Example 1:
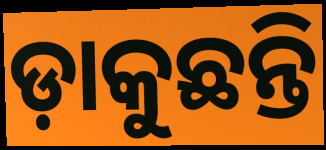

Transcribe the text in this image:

ଡ଼ାକୁଛନ୍ତି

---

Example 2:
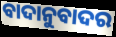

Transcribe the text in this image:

ବାଦାନୁବାଦର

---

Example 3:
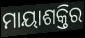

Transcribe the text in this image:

ମାୟାଶକ୍ତିର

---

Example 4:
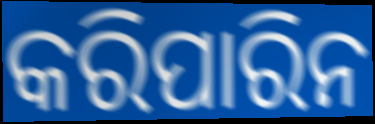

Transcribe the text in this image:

କରିପାରିନ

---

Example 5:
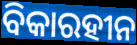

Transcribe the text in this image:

ବିକାରହୀନ